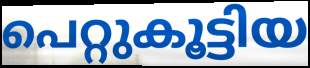
പെറ്റുകൂട്ടിയ